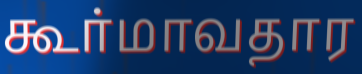
கூர்மாவதார